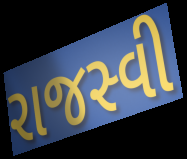
રાજસ્વી